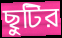
ছুটির